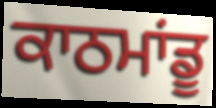
ਕਾਠਮਾਂਡੂ